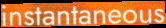
instantaneous